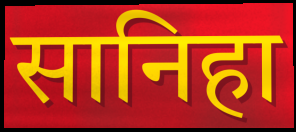
सानिहा